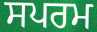
ਸਪਰਮ